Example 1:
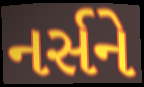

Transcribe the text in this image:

નર્સને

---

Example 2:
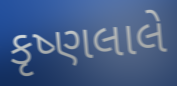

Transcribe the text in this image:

કૃષ્ણલાલે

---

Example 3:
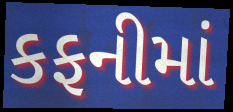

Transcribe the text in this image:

કફનીમાં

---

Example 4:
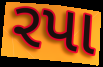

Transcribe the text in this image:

રપા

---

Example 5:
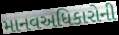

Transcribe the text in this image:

માનવઅધિકારોની